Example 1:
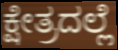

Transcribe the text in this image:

ಕ್ಷೇತ್ರದಲ್ಲೆ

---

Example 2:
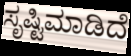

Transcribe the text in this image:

ಸೃಷ್ಟಿಮಾಡಿದೆ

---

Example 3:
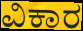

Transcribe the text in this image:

ವಿಕಾರ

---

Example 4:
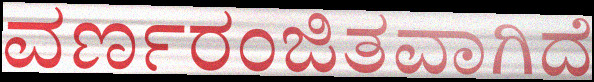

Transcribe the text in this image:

ವರ್ಣರಂಜಿತವಾಗಿದೆ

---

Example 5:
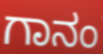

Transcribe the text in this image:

ಗಾನಂ